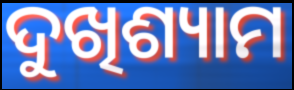
ଦୁଖିଶ୍ୟାମ